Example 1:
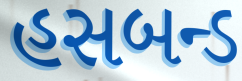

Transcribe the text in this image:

હસબન્ડ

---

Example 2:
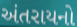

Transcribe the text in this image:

અંતરાયનો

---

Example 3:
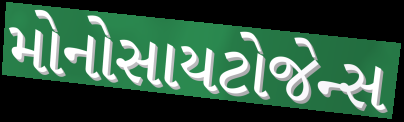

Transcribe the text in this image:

મોનોસાયટોજેન્સ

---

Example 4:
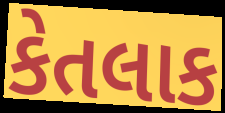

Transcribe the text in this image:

કેતલાક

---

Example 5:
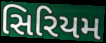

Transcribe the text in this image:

સિરિયમ